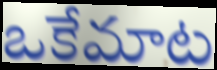
ఒకేమాట